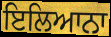
ਇਲਿਆਨਾ